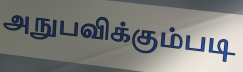
அநுபவிக்கும்படி